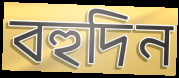
বহুদিন